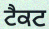
ਟੈਕਟ